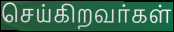
செய்கிறவர்கள்